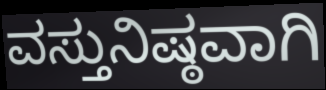
ವಸ್ತುನಿಷ್ಠವಾಗಿ